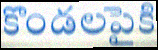
కొండలపైకి